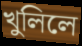
খুলিলে